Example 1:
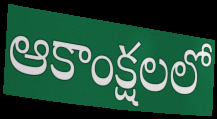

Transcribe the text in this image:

ఆకాంక్షలలో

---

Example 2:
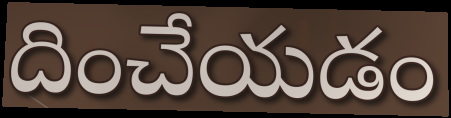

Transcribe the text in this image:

దించేయడం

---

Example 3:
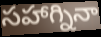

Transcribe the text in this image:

సహాగ్నినా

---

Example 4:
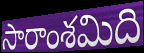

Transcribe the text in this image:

సారాంశమిది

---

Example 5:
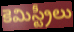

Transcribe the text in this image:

కెమిస్ట్రీలు